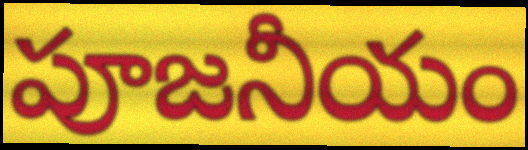
పూజనీయం